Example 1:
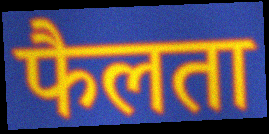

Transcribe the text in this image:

फैलता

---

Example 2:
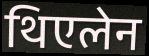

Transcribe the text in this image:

थिएलेन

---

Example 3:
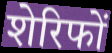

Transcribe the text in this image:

शेरिफों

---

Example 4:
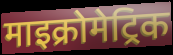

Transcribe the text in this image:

माइक्रोमेट्रिक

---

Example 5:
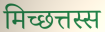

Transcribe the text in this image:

मिच्छत्तस्स